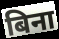
बिना